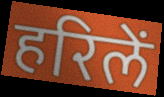
हरिलें